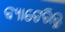
ବ୍ୟାଟେରିରୁ